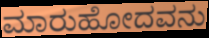
ಮಾರುಹೋದವನು